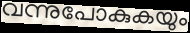
വന്നുപോകുകയും